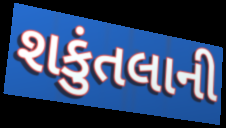
શકુંતલાની